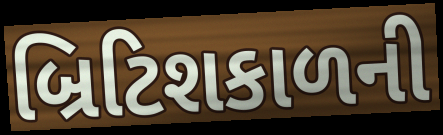
બ્રિટિશકાળની